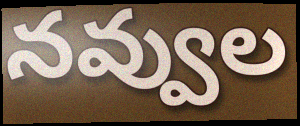
నవ్వుల